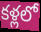
కళ్లలో